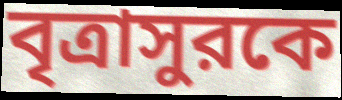
বৃত্রাসুরকে